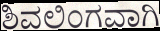
ಶಿವಲಿಂಗವಾಗಿ